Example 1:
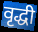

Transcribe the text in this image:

वृद्धी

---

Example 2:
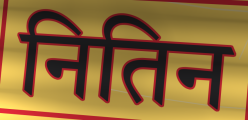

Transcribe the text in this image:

नितिन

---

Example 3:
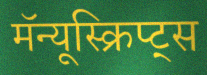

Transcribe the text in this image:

मॅन्यूस्क्रिप्ट्स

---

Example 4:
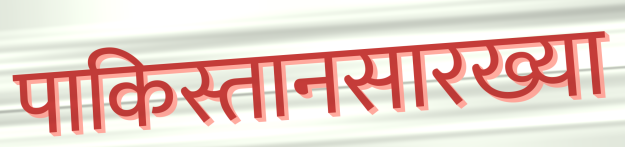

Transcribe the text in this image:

पाकिस्तानसारख्या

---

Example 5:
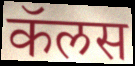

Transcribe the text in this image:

कॅलस